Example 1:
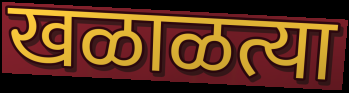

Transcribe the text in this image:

खळाळत्या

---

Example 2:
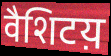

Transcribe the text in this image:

वैशिटय़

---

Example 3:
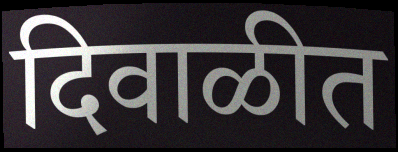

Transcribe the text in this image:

दिवाळीत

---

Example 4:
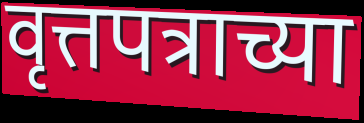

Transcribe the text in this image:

वृत्तपत्राच्या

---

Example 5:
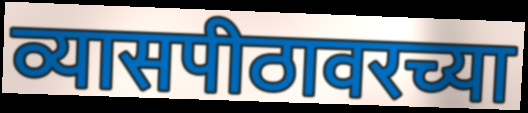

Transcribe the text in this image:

व्यासपीठावरच्या